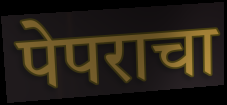
पेपराचा